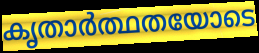
കൃതാർത്ഥതയോടെ